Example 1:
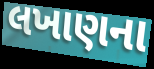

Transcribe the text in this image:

લખાણના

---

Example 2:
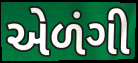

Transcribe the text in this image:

એળંગી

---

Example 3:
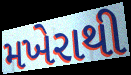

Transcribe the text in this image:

મખેરાથી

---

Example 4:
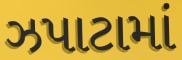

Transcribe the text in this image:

ઝપાટામાં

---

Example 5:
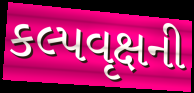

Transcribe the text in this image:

કલ્પવૃક્ષની